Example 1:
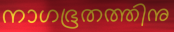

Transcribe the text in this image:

നാഗഭൂതത്തിനു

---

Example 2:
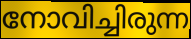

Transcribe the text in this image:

നോവിച്ചിരുന്ന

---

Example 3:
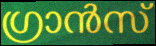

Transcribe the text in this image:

ഗ്രാൻസ്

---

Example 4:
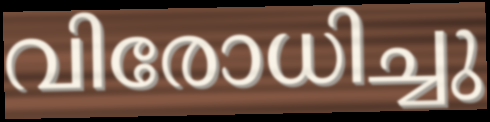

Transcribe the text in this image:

വിരോധിച്ചു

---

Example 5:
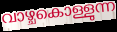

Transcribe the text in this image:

വാഴ്ചകൊള്ളുന്ന